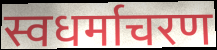
स्वधर्माचरण